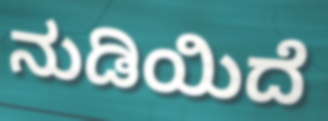
ನುಡಿಯಿದೆ